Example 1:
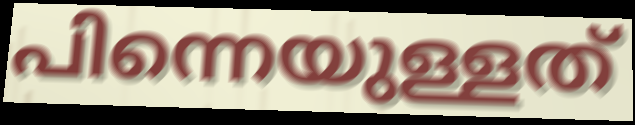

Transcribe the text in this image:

പിന്നെയുള്ളത്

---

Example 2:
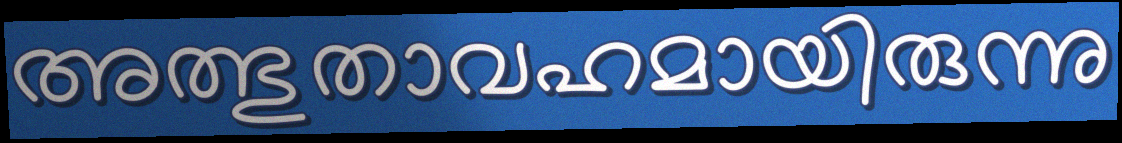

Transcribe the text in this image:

അത്ഭുതാവഹമായിരുന്നു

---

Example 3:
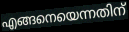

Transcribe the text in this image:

എങ്ങനെയെന്നതിന്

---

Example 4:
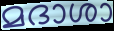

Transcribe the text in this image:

മദാശാ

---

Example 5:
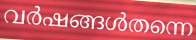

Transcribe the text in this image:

വർഷങ്ങൾതന്നെ